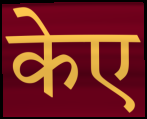
केए